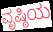
ವೃಷ್ಠಿಯ